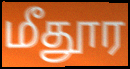
மீதூர